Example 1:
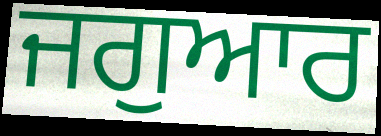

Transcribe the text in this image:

ਜਗੁਆਰ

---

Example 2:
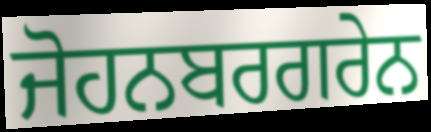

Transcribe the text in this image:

ਜੋਹਨਬਰਗਰੇਨ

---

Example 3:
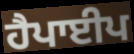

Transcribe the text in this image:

ਹੈਪਾਈਪ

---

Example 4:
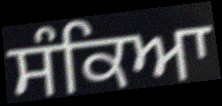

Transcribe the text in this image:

ਸੰਕਿਆ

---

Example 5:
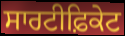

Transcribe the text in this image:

ਸਾਰਟੀਫ਼ਿਕੇਟ